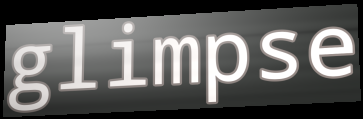
glimpse